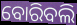
ବୋରିବଲି